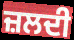
ਜ਼ਲਦੀ